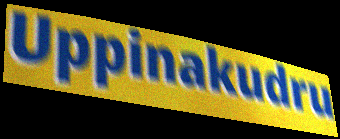
Uppinakudru